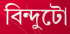
বিন্দুটো